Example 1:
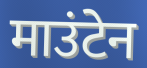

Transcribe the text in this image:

माउंटेन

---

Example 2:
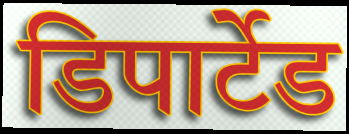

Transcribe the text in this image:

डिपार्टेड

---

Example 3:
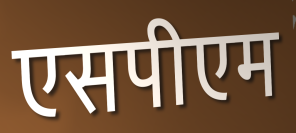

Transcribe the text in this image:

एसपीएम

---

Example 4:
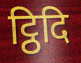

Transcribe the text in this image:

ट्ठिदि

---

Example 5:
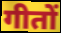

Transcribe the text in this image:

गीतों